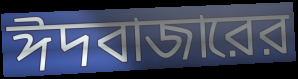
ঈদবাজারের